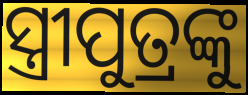
ସ୍ତ୍ରୀପୁତ୍ରଙ୍କୁ